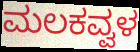
ಮಲಕವ್ವಳ